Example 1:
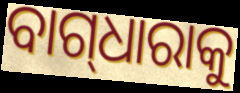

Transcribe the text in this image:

ବାଗ୍‌ଧାରାକୁ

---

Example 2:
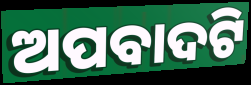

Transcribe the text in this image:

ଅପବାଦଟି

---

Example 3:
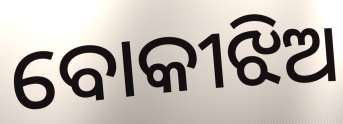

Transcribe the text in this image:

ବୋକୀଝିଅ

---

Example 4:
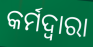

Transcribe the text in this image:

କର୍ମଦ୍ବାରା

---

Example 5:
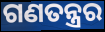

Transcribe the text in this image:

ଗଣତନ୍ତ୍ରର